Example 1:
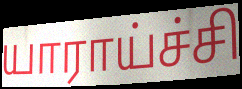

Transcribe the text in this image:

யாராய்ச்சி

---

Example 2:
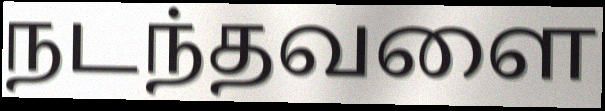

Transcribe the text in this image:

நடந்தவளை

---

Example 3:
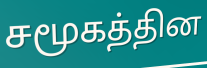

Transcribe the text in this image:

சமூகத்தின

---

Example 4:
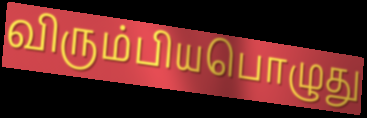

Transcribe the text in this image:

விரும்பியபொழுது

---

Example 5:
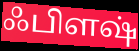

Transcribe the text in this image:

ஃபிளஷ்